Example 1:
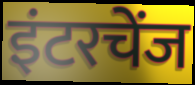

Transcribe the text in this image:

इंटरचेंज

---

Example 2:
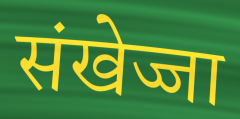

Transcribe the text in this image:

संखेज्जा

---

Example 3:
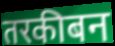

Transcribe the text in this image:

तरकीबन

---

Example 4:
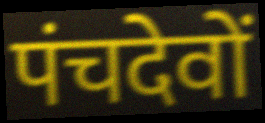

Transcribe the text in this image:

पंचदेवों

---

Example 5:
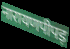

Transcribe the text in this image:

नारायणपीपड़